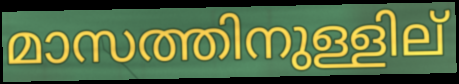
മാസത്തിനുള്ളില്